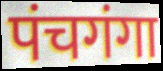
पंचगंगा